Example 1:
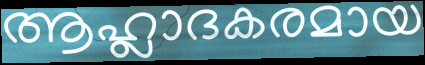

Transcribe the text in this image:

ആഹ്ലാദകരമായ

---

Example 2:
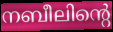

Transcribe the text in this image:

നബീലിന്റെ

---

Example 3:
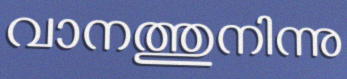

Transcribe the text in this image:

വാനത്തുനിന്നു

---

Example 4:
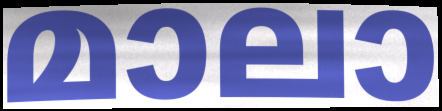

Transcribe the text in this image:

മാലാ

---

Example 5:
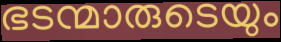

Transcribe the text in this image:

ഭടന്മാരുടെയും